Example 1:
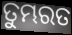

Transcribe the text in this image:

ତୁମ୍ଭରତ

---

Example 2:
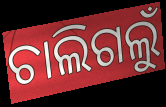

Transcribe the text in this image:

ଚାଲିଗଲୁଁ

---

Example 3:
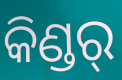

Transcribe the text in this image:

କିଣ୍ଡର୍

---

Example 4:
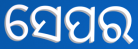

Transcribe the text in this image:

ସେପର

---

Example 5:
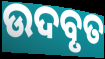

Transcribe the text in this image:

ଉଦବୃତ